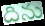
దిను